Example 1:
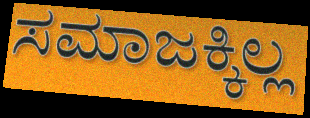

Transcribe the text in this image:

ಸಮಾಜಕ್ಕಿಲ್ಲ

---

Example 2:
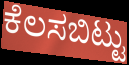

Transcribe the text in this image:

ಕೆಲಸಬಿಟ್ಟು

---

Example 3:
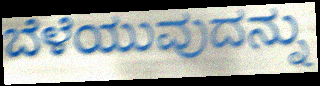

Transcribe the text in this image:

ಬೆಳೆಯುವುದನ್ನು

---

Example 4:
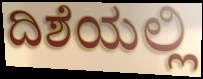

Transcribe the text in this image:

ದಿಶೆಯಲ್ಲಿ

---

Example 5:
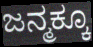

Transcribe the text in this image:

ಜನ್ಮಕ್ಕೂ